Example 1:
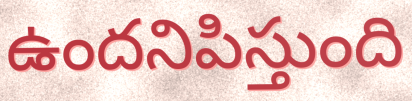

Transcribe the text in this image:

ఉందనిపిస్తుంది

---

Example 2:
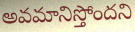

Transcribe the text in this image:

అవమానిస్తోందని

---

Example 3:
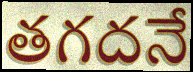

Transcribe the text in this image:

తగదనే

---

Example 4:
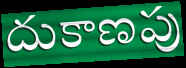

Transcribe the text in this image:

దుకాణపు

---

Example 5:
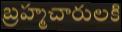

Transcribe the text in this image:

బ్రహ్మచారులకి